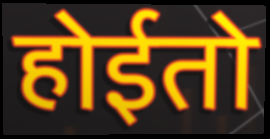
होईतो